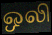
ஒலி